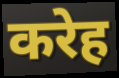
करेह